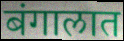
बंगालात